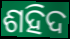
ଶହିଦ